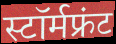
स्टॉर्मफ्रंट